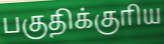
பகுதிக்குரிய